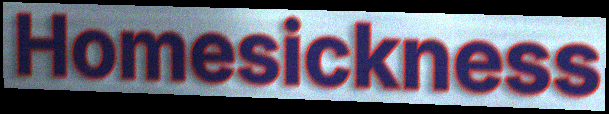
Homesickness